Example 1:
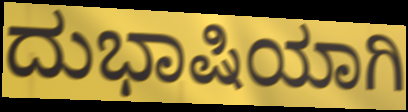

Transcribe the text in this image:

ದುಭಾಷಿಯಾಗಿ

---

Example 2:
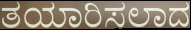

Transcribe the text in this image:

ತಯಾರಿಸಲಾದ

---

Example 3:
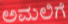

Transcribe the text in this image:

ಅಮಲಿಗೆ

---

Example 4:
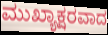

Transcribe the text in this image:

ಮುಖ್ಯಾಕ್ಷರವಾದ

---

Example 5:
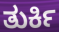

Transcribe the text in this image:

ತುರ್ಕಿ